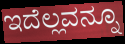
ಇದೆಲ್ಲವನ್ನೂ